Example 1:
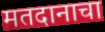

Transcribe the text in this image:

मतदानाचा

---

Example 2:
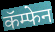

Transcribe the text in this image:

कॅम्फेन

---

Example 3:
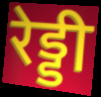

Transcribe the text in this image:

रेड्डी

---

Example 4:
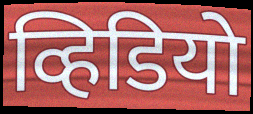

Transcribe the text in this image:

व्हिडियो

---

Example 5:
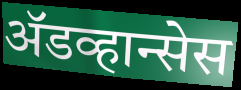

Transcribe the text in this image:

ॲडव्हान्सेस